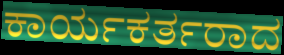
ಕಾರ್ಯಕರ್ತರಾದ